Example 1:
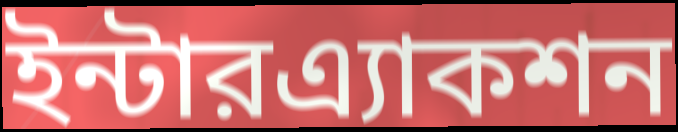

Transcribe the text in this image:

ইন্টারএ্যাকশন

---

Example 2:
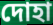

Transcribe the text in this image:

দোহা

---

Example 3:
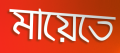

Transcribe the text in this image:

মায়েতে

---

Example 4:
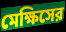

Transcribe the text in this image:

মেক্ষিসের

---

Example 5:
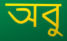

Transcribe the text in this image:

অবু